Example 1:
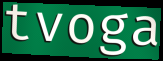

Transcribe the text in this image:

tvoga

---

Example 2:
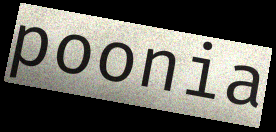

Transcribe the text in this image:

poonia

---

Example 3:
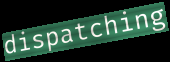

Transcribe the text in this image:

dispatching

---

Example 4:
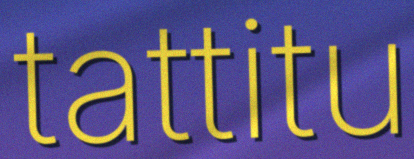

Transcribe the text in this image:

tattitu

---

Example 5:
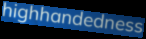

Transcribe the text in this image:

highhandedness